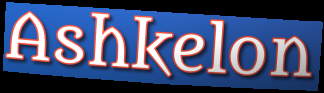
Ashkelon